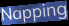
Napping